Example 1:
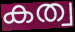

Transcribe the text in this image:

കത്വ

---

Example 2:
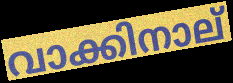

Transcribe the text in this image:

വാക്കിനാല്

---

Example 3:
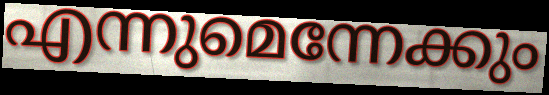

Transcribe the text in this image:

എന്നുമെന്നേക്കും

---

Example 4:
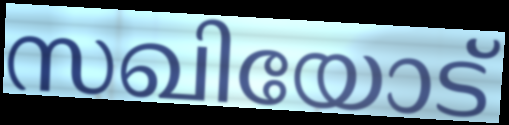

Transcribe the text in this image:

സഖിയോട്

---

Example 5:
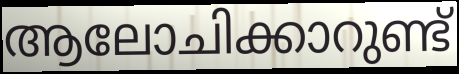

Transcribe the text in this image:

ആലോചിക്കാറുണ്ട്